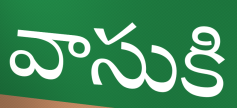
వాసుకి